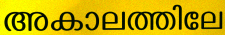
അകാലത്തിലേ